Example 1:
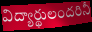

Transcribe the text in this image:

విద్యార్థులందరినీ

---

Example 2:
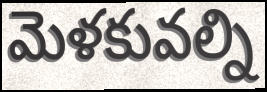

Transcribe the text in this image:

మెళకువల్ని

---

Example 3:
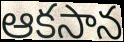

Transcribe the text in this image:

ఆకసాన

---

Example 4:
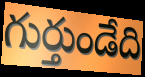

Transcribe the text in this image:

గుర్తుండేది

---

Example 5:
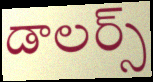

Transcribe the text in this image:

డాలర్స్